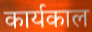
कार्यकाल